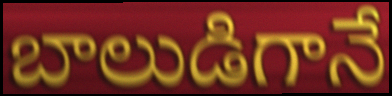
బాలుడిగానే